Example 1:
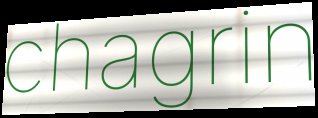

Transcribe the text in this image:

chagrin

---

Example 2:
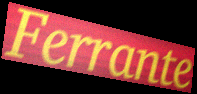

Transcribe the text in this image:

Ferrante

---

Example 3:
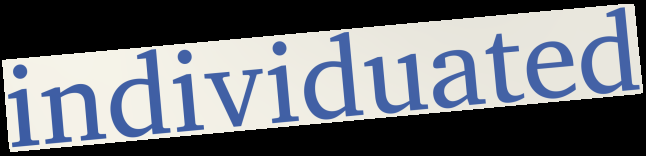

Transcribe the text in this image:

individuated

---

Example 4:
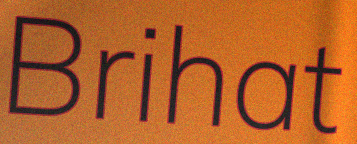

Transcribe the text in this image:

Brihat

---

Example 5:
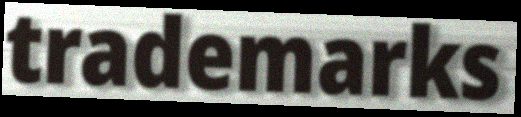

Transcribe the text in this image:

trademarks